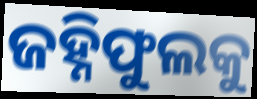
ଜହ୍ନିଫୁଲକୁ